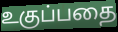
உகுப்பதை